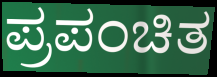
ಪ್ರಪಂಚಿತ